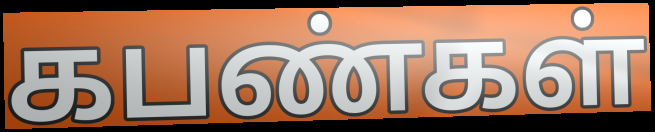
கபண்கள்